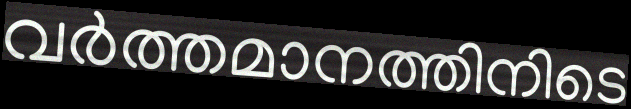
വർത്തമാനത്തിനിടെ